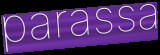
parassa